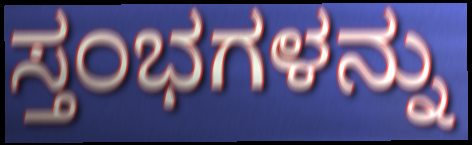
ಸ್ತಂಭಗಳನ್ನು